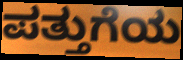
ಪತ್ತುಗೆಯ